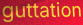
guttation